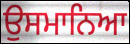
ਉਸਮਾਨਿਆ